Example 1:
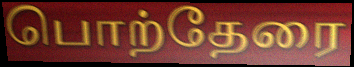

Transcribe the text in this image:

பொற்தேரை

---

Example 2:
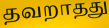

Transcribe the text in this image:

தவறாதது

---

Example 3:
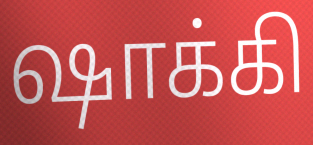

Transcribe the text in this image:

ஷாக்கி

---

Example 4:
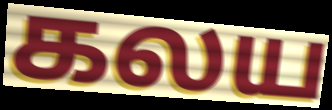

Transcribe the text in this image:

கலய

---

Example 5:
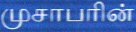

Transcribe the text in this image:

முசாபரின்